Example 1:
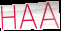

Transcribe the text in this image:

HAA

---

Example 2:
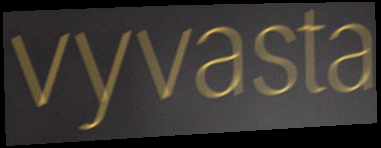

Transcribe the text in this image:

vyvasta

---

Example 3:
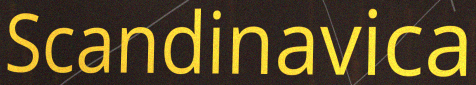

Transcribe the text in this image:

Scandinavica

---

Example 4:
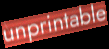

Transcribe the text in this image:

unprintable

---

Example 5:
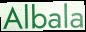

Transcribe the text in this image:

Albala